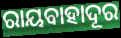
ରାୟବାହାଦୂର